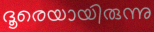
ദൂരെയായിരുന്നു